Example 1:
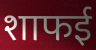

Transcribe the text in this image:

शाफई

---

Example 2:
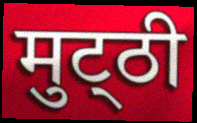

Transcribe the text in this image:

मुट्‌ठी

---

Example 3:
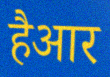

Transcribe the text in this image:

हैआर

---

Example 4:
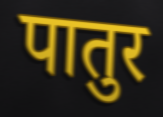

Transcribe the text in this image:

पातुर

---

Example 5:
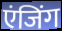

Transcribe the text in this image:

एंजिंग